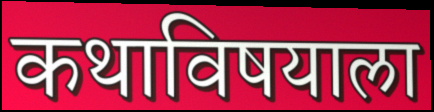
कथाविषयाला